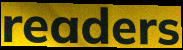
readers